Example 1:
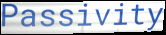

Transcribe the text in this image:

Passivity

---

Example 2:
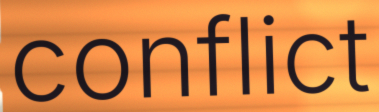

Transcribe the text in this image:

conflict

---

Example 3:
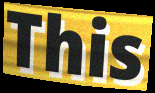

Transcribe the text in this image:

This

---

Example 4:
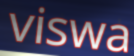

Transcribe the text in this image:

viswa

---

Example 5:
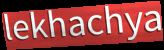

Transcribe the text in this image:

lekhachya